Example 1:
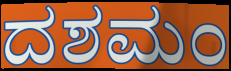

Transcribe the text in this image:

ದಶಮಂ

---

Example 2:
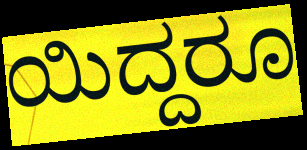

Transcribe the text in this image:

ಯಿದ್ದರೂ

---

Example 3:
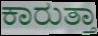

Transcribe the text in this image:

ಕಾರುತ್ತಾ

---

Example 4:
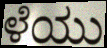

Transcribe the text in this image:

ಳೆಯು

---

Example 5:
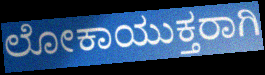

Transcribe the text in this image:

ಲೋಕಾಯುಕ್ತರಾಗಿ